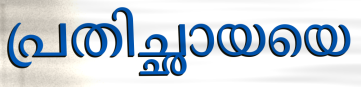
പ്രതിച്ഛായയെ